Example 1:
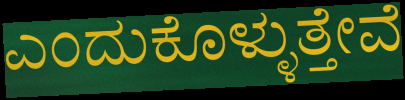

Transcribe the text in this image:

ಎಂದುಕೊಳ್ಳುತ್ತೇವೆ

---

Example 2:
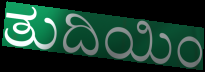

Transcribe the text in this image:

ತುದಿಯಿಂ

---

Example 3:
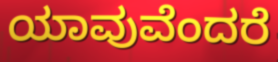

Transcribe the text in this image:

ಯಾವುವೆಂದರೆ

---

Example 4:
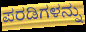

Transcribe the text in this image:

ಪರಡಿಗಳನ್ನು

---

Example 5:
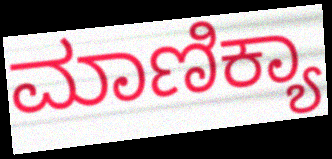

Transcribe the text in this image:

ಮಾಣಿಕ್ಯಾ